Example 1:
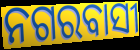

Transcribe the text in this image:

ନଗରବାସୀ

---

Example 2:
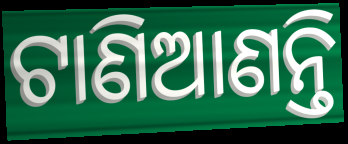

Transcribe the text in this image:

ଟାଣିଆଣନ୍ତି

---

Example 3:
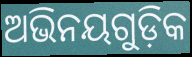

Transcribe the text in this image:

ଅଭିନୟଗୁଡ଼ିକ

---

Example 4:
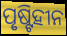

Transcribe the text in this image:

ପୃଷ୍ଟିହୀନ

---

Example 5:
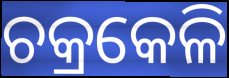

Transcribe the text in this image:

ଚକ୍ରକେଳି